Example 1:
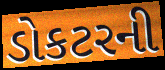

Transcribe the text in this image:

ડોકટરની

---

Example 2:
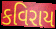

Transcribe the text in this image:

કવિરાય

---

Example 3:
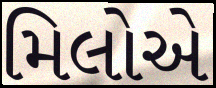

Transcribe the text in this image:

મિલોએ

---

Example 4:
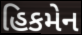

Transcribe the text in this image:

હિકમેન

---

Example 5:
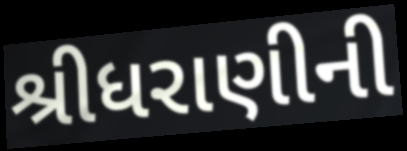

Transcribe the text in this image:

શ્રીધરાણીની